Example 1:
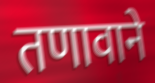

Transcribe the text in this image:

तणावाने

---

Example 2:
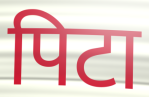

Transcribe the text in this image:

पिटा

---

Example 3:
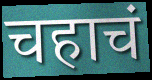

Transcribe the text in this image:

चहाचं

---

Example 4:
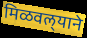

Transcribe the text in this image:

मिळवल्याने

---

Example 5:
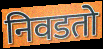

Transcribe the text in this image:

निवडतो